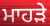
ਮਾਹੜੇ